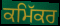
ਕਮਿੱਕਰ